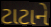
ટાટાને